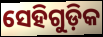
ସେହିଗୁଡ଼ିକ